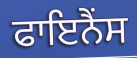
ਫਾਇਨੈਂਸ